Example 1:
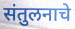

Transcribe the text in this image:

संतुलनाचे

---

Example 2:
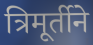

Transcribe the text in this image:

त्रिमूर्तीने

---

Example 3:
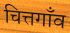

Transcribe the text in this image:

चित्तगाँव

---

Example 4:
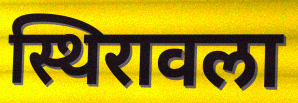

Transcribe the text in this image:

स्थिरावला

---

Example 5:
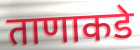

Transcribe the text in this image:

ताणाकडे